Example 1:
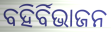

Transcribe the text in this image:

ବହିର୍ବିଭାଜନ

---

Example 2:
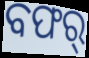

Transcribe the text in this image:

ବଫର୍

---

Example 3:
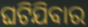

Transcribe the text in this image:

ଘଟିଯିବାର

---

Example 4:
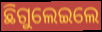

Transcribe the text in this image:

ଛିଗୁଲେଇଲେ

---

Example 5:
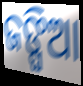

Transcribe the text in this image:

ଜଙ୍ଘିଆ